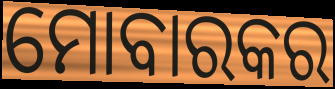
ମୋବାରକର